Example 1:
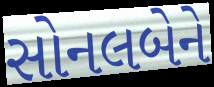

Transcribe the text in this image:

સોનલબેને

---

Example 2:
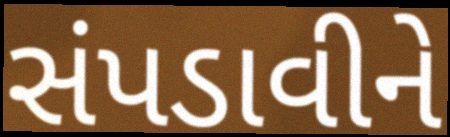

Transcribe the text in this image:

સંપડાવીને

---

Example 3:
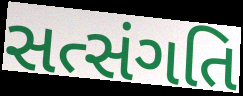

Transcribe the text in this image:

સત્સંગતિ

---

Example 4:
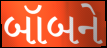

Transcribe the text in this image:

બૉબને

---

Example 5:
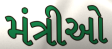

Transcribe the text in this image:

મંત્રીઓ